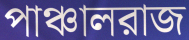
পাঞ্চালরাজ